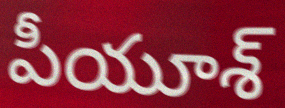
పీయూశ్